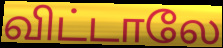
விட்டாலே